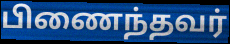
பிணைந்தவர்